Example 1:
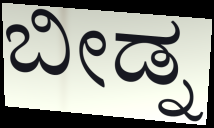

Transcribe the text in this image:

ಬೀಡ್ನ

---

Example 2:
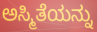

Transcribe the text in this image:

ಅಸ್ಮಿತೆಯನ್ನು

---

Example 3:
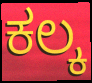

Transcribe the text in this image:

ಕಲ್ಕ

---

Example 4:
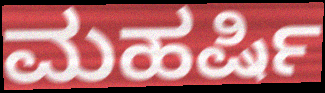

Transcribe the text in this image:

ಮಹರ್ಷಿ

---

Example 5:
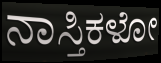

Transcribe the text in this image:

ನಾಸ್ತಿಕಳೋ